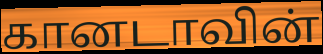
கானடாவின்